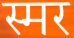
स्मर